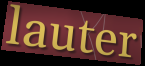
lauter